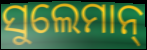
ସୁଲେମାନ୍